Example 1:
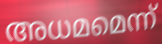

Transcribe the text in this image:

അധമമെന്ന്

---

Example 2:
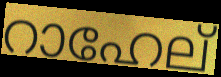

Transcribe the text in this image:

റാഹേല്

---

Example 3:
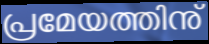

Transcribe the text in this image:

പ്രമേയത്തിനു്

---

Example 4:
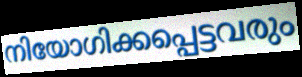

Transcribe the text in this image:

നിയോഗിക്കപ്പെട്ടവരും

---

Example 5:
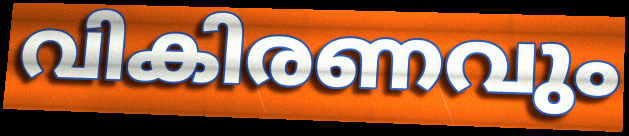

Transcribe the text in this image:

വികിരണവും